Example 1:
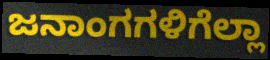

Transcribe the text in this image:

ಜನಾಂಗಗಳಿಗೆಲ್ಲಾ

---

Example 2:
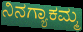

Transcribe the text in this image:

ನಿನಗ್ಯಾಕಮ್ಮ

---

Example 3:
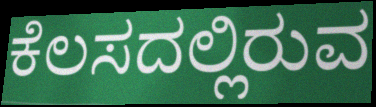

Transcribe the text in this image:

ಕೆಲಸದಲ್ಲಿರುವ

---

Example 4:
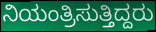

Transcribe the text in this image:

ನಿಯಂತ್ರಿಸುತ್ತಿದ್ದರು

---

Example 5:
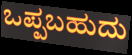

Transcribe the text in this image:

ಒಪ್ಪಬಹುದು